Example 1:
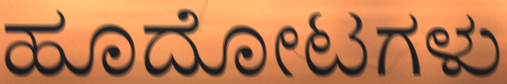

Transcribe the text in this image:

ಹೂದೋಟಗಳು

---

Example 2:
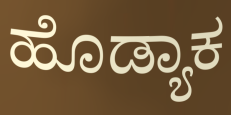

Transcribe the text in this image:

ಹೊಡ್ಯಾಕ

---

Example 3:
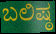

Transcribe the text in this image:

ಬಲಿಷ್ಠ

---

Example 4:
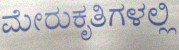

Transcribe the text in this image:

ಮೇರುಕೃತಿಗಳಲ್ಲಿ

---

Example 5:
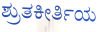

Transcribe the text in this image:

ಶ್ರುತಕೀರ್ತಿಯ